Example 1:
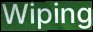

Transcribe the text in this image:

Wiping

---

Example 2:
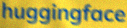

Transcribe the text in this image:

huggingface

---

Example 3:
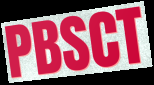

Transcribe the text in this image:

PBSCT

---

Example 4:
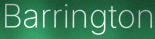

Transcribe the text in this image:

Barrington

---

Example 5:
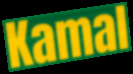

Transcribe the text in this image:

Kamal